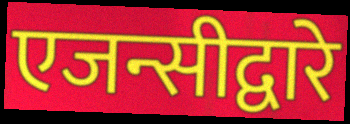
एजन्सीद्वारे